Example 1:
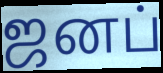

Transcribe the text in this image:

ஜனப்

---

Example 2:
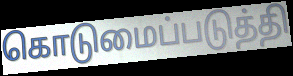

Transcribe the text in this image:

கொடுமைப்படுத்தி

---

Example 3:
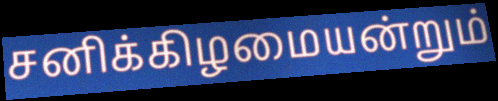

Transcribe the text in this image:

சனிக்கிழமையன்றும்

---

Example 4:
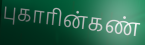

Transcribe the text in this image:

புகாரின்கண்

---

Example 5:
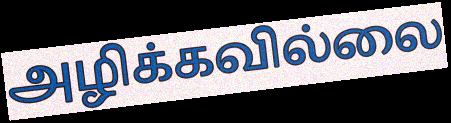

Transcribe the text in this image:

அழிக்கவில்லை